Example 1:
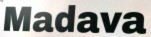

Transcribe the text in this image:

Madava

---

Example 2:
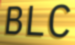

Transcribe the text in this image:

BLC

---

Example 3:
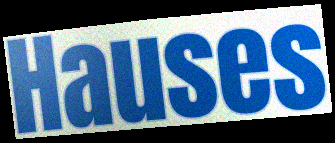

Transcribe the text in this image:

Hauses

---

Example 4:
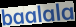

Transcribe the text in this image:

baalala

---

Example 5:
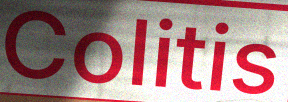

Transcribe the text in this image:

Colitis